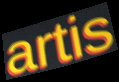
artis